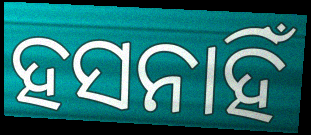
ହସନାହିଁ